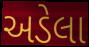
અડેલા